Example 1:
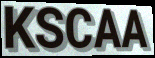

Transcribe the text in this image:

KSCAA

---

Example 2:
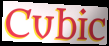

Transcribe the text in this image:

Cubic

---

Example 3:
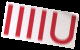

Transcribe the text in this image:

IIIIU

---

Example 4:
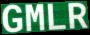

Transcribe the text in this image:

GMLR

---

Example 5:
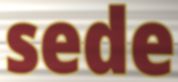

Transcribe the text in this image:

sede